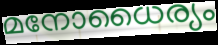
മനോധൈര്യം